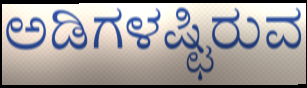
ಅಡಿಗಳಷ್ಟಿರುವ